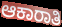
ಆಕಾರಾತಿ